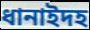
ধানাইদহ